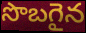
సొబగైన